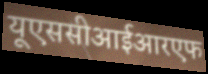
यूएससीआईआरएफ